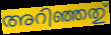
അറിഞ്ഞതു്